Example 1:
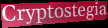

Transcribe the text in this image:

Cryptostegia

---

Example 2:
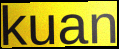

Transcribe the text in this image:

kuan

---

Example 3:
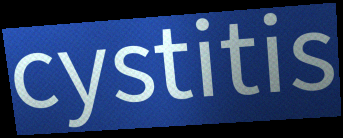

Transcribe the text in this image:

cystitis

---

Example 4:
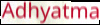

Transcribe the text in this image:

Adhyatma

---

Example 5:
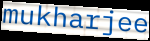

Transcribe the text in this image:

mukharjee